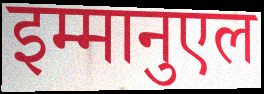
इम्मानुएल